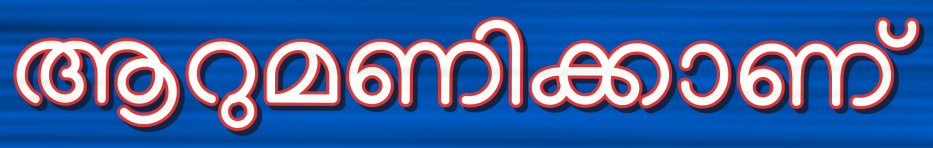
ആറുമണിക്കാണ്